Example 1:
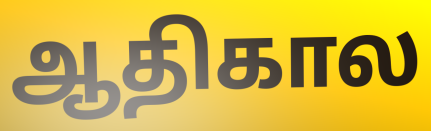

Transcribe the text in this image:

ஆதிகால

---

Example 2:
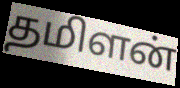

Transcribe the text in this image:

தமிளன்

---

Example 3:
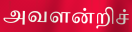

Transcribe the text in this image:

அவளன்றிச்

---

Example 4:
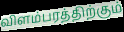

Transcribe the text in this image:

விளம்பரத்திற்கும்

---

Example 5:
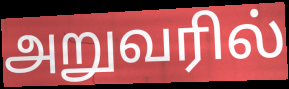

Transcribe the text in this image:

அறுவரில்